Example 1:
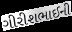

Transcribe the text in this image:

ગીરીશભાઈની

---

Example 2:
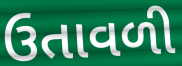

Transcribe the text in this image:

ઉતાવળી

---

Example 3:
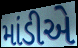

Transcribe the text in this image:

માંડીએ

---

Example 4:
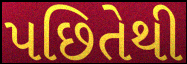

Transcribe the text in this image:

પછિતેથી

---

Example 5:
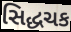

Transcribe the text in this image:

સિદ્ધચક